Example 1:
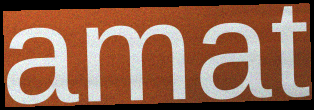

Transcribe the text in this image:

amat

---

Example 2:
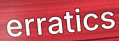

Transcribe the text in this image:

erratics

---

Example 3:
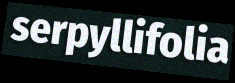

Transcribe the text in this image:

serpyllifolia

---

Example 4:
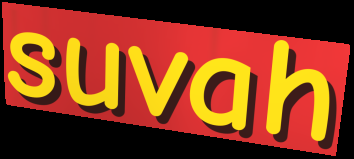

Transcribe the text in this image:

suvah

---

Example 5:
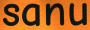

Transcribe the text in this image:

sanu